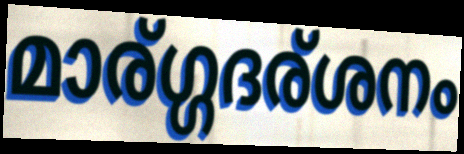
മാര്ഗ്ഗദര്ശനം